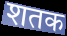
शतक